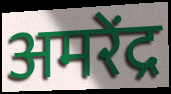
अमरेंद्र